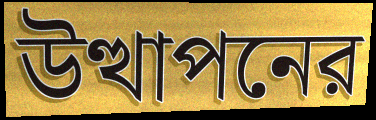
উত্থাপনের